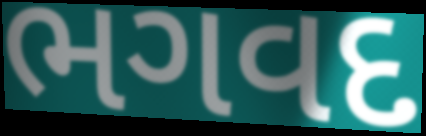
ભગવદ